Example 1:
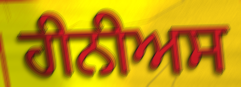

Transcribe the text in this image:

ਹੀਨੀਅਸ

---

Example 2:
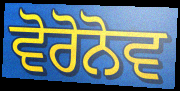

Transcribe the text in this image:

ਵੋਰੋਨੋਵ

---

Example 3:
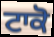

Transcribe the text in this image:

ਟਾਕੋ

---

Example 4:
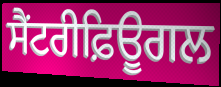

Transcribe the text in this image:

ਸੈਂਟਰੀਫ਼ਿਊਗਲ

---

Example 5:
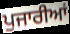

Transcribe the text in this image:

ਪੁਜਾਰੀਆਂ